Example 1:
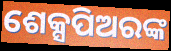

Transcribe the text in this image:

ଶେକ୍ସପିଅରଙ୍କ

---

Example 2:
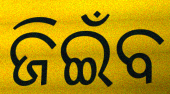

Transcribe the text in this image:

ଜିଇଁବ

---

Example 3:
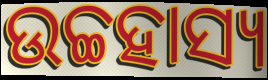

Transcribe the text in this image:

ଉଚ୍ଚହାସ୍ୟ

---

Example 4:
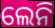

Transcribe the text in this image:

ଲେନି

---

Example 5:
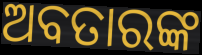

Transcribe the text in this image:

ଅବତାରଙ୍କ